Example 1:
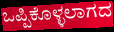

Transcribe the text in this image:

ಒಪ್ಪಿಕೊಳ್ಳಲಾಗದ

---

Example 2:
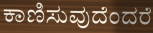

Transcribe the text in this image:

ಕಾಣಿಸುವುದೆಂದರೆ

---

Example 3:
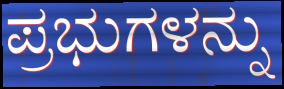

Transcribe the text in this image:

ಪ್ರಭುಗಳನ್ನು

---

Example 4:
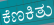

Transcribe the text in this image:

ಕೆಣಕಿತು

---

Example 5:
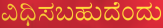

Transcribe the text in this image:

ವಿಧಿಸಬಹುದೆಂದು